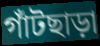
গাঁটছাড়া